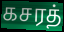
கசரத்